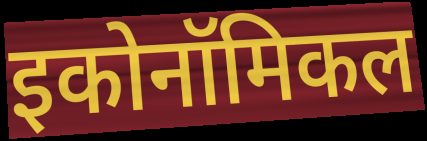
इकोनॉमिकल